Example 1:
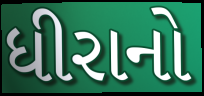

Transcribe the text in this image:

ધીરાનો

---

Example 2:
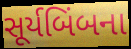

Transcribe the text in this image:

સૂર્યબિંબના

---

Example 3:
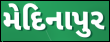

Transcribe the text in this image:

મેદિનાપુર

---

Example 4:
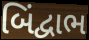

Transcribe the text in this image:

બિંદ્વાભ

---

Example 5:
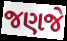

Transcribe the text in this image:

જણજે